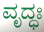
ವೃದ್ಧಃ